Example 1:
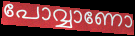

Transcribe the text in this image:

പോവ്വാണോ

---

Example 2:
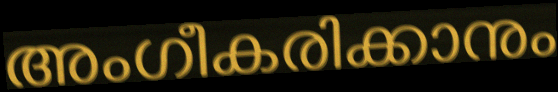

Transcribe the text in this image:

അംഗീകരിക്കാനും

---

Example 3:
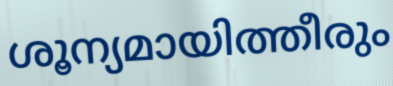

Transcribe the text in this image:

ശൂന്യമായിത്തീരും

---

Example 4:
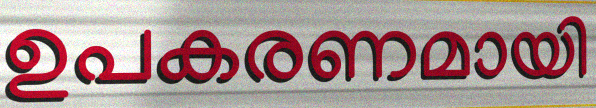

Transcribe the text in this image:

ഉപകരണമായി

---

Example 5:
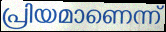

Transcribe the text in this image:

പ്രിയമാണെന്ന്